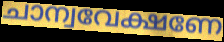
ചാന്വവേക്ഷണേ